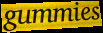
gummies